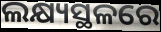
ଲକ୍ଷ୍ୟସ୍ଥଳରେ